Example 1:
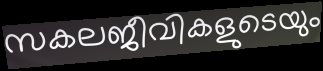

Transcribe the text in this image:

സകലജീവികളുടെയും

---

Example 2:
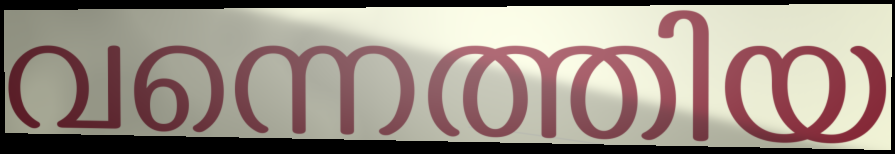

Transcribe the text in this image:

വന്നെത്തിയ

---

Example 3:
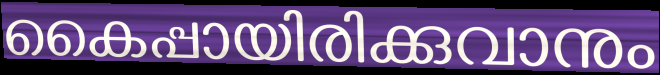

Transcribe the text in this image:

കൈപ്പായിരിക്കുവാനും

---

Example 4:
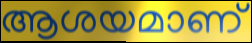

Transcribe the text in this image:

ആശയമാണ്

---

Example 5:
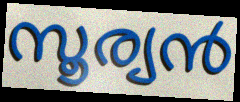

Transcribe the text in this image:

സൂര്യൻ